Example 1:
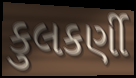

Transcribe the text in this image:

કુલકર્ણી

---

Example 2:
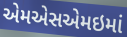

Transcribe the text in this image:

એમએસએમઇમાં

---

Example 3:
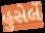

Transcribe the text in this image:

હુસેર્લે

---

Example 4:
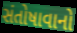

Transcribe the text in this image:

સંતોષાવાનો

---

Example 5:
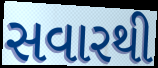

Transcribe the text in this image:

સવારથી